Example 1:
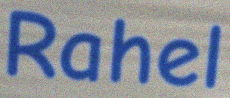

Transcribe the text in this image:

Rahel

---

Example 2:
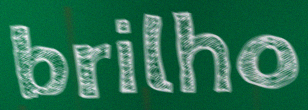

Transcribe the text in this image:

brilho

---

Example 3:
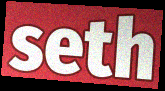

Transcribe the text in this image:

seth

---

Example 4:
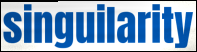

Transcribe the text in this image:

singuilarity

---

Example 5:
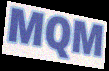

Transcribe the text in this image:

MQM